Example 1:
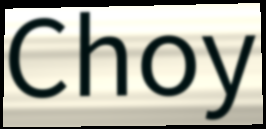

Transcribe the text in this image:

Choy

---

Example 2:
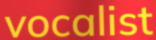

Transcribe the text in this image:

vocalist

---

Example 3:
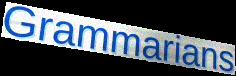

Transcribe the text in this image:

Grammarians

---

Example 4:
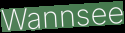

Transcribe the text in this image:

Wannsee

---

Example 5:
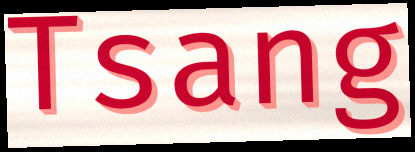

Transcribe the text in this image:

Tsang